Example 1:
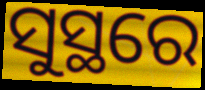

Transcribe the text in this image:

ସୁସ୍ଥରେ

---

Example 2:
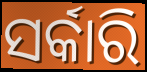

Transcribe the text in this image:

ସର୍କାରି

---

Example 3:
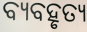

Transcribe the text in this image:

ବ୍ୟବହୃତ୍ୟ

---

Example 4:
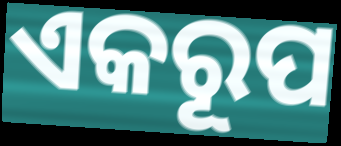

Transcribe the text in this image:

ଏକରୂପ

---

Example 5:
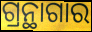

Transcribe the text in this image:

ଗ୍ରନ୍ଥାଗାର